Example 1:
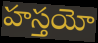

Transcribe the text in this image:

హస్తయో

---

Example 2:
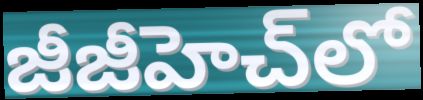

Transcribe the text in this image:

జీజీహెచ్‌లో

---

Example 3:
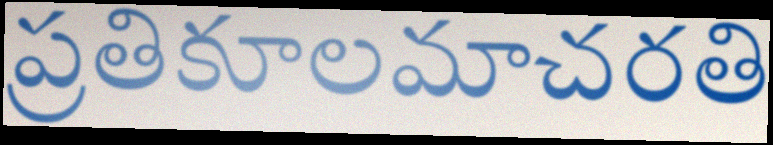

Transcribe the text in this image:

ప్రతికూలమాచరతి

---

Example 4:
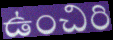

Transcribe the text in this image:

ఉంచిరి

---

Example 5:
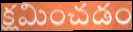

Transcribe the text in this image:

క్షమించడం